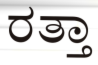
ರತ್ತಾ